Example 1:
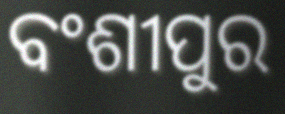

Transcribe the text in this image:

ବଂଶୀପୁର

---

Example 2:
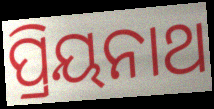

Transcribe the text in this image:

ପ୍ରିୟନାଥ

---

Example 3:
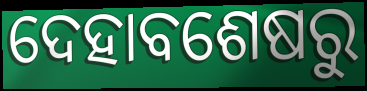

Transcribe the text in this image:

ଦେହାବଶେଷରୁ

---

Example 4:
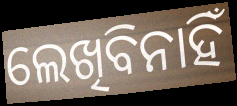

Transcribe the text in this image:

ଲେଖିବିନାହିଁ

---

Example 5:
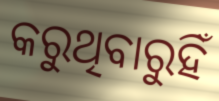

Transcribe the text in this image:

କରୁଥିବାରୁହିଁ